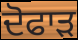
ਦੋਫਾੜ